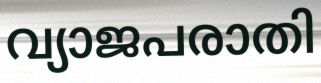
വ്യാജപരാതി